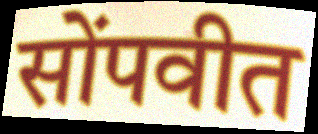
सोंपवीत